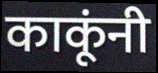
काकूंनी